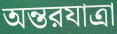
অন্তরযাত্রা